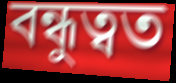
বন্ধুত্বত